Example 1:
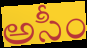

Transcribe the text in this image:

అసీం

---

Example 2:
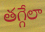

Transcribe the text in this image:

తగ్గేలా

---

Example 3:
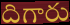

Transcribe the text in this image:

దిగారు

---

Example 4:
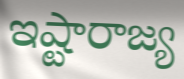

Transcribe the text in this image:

ఇష్టారాజ్య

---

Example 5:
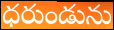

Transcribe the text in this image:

ధరుండును